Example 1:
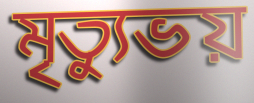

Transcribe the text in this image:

মৃত্যুভয়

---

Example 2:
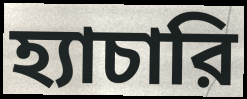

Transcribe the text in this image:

হ্যাচারি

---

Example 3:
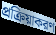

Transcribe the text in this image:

প্রক্রিয়াকরণ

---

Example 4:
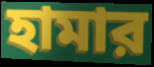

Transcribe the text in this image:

হামার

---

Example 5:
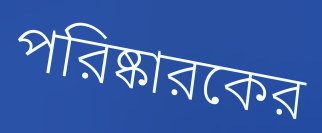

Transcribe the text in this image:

পরিষ্কারকের